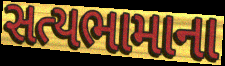
સત્યભામાના